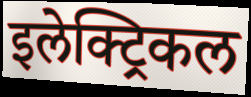
इलेक्ट्रिकल